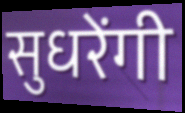
सुधरेंगी